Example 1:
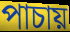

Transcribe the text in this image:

পাচায়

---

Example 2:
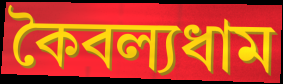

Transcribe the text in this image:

কৈবল্যধাম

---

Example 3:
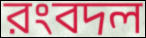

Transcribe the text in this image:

রংবদল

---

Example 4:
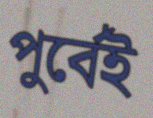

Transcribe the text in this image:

পুর্বেই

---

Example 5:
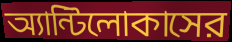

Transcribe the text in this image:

অ্যান্টিলোকাসের